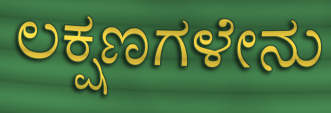
ಲಕ್ಷಣಗಳೇನು